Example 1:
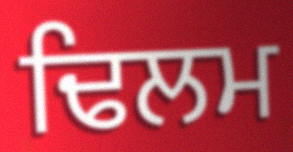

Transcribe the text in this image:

ਢਿਲਮ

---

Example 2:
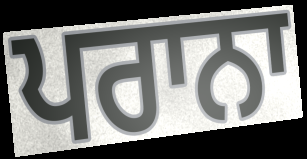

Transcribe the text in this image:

ਪਰਾਨਾ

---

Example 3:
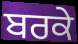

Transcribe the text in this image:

ਬਰਕੇ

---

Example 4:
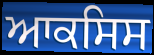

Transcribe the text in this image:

ਆਕਸਿਸ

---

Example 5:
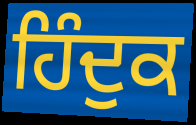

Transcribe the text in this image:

ਹਿੰਦੁਕ